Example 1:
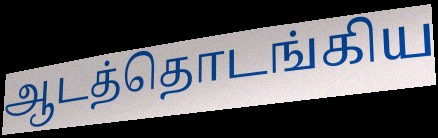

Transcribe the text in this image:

ஆடத்தொடங்கிய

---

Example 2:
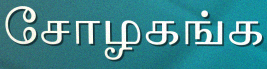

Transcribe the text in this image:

சோழகங்க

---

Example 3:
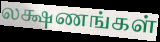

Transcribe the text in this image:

லக்ஷணங்கள்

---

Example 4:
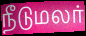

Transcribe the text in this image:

நீடுமலர்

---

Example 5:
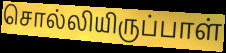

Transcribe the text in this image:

சொல்லியிருப்பாள்